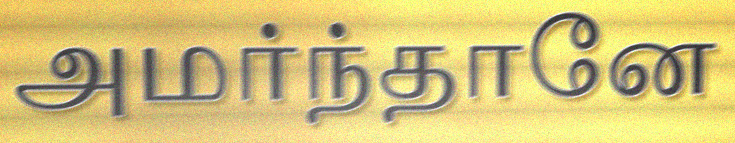
அமர்ந்தானே